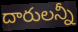
దారులన్నీ